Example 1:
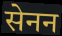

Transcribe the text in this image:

सेनन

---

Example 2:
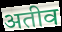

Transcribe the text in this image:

अतीव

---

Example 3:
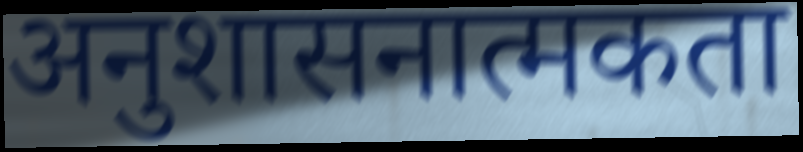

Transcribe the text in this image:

अनुशासनात्मकता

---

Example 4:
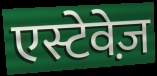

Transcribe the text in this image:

एस्टेवेज़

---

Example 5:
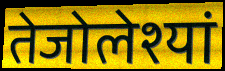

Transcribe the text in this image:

तेजोलेश्यां